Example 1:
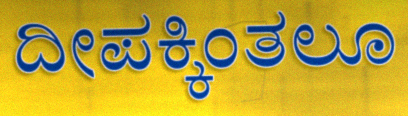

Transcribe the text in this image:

ದೀಪಕ್ಕಿಂತಲೂ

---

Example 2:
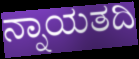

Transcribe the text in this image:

ನ್ನಾಯತದಿ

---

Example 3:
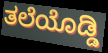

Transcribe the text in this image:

ತಲೆಯೊಡ್ಡಿ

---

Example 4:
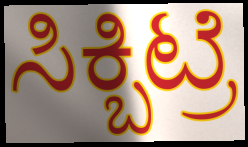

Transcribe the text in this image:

ಸಿಕ್ಬಿಟ್ರೆ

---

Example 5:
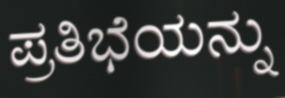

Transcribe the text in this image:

ಪ್ರತಿಭೆಯನ್ನು